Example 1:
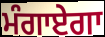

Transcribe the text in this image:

ਮੰਗਾਏਗਾ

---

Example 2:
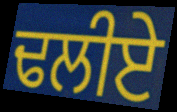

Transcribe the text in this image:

ਢਲੀਏ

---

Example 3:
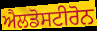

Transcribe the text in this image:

ਐਲਡੋਸਟੀਰੋਨ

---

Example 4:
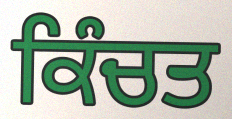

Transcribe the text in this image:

ਕਿੰਚਤ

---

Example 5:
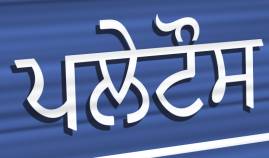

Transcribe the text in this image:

ਪਲੇਟੌਸ